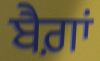
ਬੈਗ਼ਾਂ